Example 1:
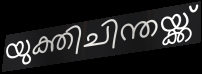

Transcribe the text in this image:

യുക്തിചിന്തയ്ക്ക്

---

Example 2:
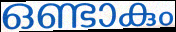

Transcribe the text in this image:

ഒണ്ടാകും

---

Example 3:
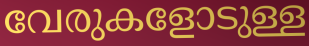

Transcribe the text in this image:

വേരുകളോടുള്ള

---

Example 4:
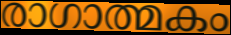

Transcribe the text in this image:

രാഗാത്മകം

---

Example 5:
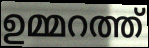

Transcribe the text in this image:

ഉമ്മറത്ത്